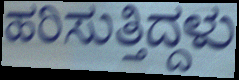
ಹರಿಸುತ್ತಿದ್ದಳು